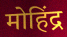
मोहिंद्र